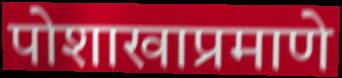
पोशाखाप्रमाणे